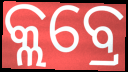
କ୍ଲବ୍ରେ